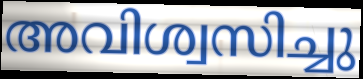
അവിശ്വസിച്ചു